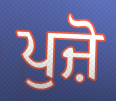
ਪੁਜ਼ੋ